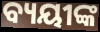
ବ୍ୟୟୀଙ୍କ